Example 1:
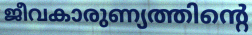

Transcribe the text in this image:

ജീവകാരുണ്യത്തിന്റെ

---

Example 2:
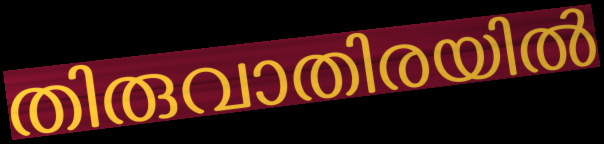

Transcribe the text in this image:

തിരുവാതിരയിൽ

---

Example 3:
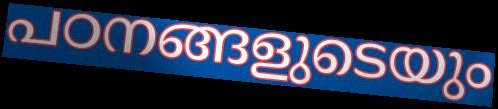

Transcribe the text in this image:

പഠനങ്ങളുടെയും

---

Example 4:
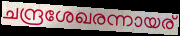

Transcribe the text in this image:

ചന്ദ്രശേഖരന്നായര്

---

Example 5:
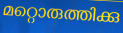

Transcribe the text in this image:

മറ്റൊരുത്തിക്കു